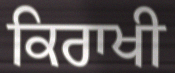
ਕਿਰਾਖੀ